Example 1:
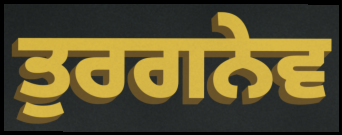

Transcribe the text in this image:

ਤੁਰਗਨੇਵ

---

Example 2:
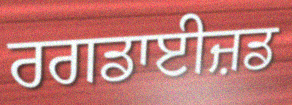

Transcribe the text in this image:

ਰਗਡਾਈਜ਼ਡ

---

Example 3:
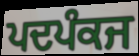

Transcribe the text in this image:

ਪਦਪੰਕਜ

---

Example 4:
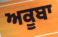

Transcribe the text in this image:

ਅਕੂਬਾ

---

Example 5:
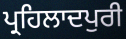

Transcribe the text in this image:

ਪ੍ਰਹਿਲਾਦਪੁਰੀ